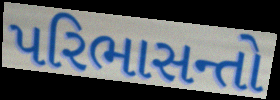
પરિભાસન્તો